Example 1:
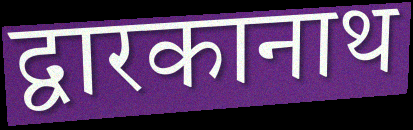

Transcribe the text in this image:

द्वारकानाथ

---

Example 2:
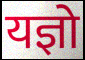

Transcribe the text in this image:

यज्ञो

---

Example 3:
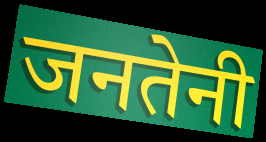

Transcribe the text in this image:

जनतेनी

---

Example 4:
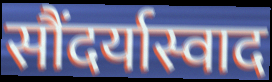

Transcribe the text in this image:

सौंदर्यास्वाद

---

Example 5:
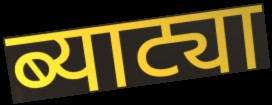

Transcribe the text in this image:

ब्याट्या